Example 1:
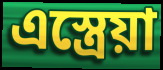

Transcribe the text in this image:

এস্ত্রেয়া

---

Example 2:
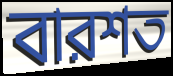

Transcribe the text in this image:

বারশত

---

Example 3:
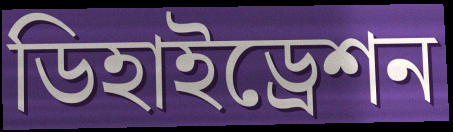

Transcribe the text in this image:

ডিহাইড্রেশন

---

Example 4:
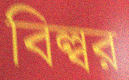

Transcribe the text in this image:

বিল্বর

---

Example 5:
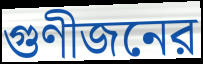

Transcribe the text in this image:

গুণীজনের